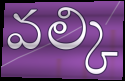
వల్కి